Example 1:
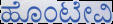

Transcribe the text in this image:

ಹೊಂಟೇವಿ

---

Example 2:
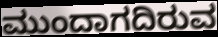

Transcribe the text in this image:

ಮುಂದಾಗದಿರುವ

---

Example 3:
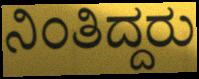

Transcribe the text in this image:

ನಿಂತಿದ್ದರು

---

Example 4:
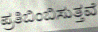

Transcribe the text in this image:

ಪ್ರತಿಬಿಂಬಿಸುತ್ತವೆ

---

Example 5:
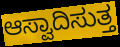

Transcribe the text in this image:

ಆಸ್ವಾದಿಸುತ್ತ